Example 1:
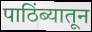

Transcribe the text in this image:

पाठिंब्यातून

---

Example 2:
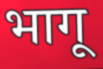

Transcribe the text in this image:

भागू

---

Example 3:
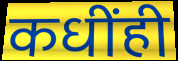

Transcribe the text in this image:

कधींही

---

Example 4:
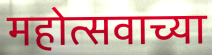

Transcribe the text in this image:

महोत्सवाच्या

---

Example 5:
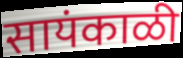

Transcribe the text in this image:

सायंकाळी